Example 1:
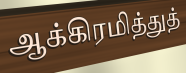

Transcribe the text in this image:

ஆக்கிரமித்துத்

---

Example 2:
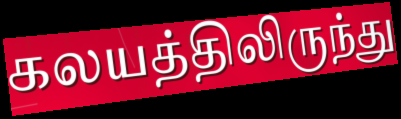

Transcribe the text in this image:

கலயத்திலிருந்து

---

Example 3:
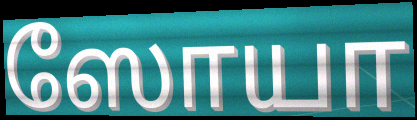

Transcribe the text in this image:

ஸோயா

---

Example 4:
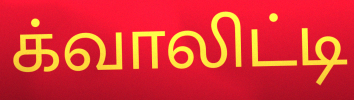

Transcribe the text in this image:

க்வாலிட்டி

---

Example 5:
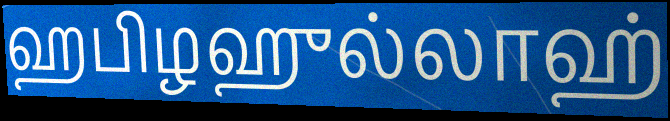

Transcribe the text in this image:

ஹபிழஹுல்லாஹ்